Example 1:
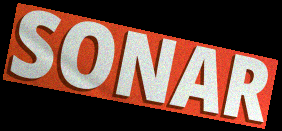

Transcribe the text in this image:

SONAR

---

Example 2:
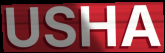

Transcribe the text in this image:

USHA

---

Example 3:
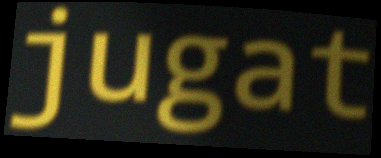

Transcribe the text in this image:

jugat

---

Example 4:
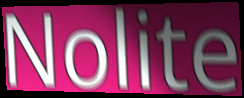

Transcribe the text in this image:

Nolite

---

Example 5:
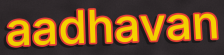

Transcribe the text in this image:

aadhavan